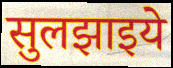
सुलझाइये